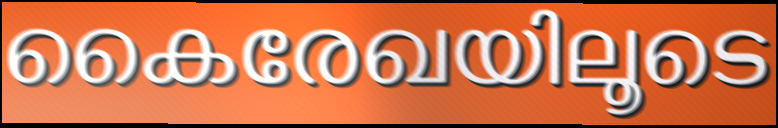
കൈരേഖയിലൂടെ